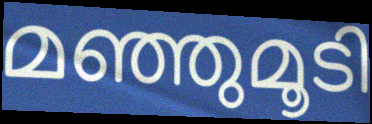
മഞ്ഞുമൂടി